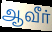
ஆவீர்